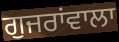
ਗੁਜਰਾਂਵਾਲਾ